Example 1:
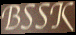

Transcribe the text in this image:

BSSK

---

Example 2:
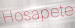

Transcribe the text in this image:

Hosapete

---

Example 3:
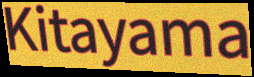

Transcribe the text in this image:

Kitayama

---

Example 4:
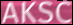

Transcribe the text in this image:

AKSC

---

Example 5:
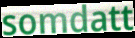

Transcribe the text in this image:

somdatt